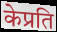
केप्रति